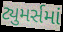
ટ્યુમર્સમાં